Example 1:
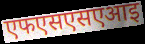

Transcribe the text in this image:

एफएसएसएआइ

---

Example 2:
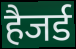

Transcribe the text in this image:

हैजर्ड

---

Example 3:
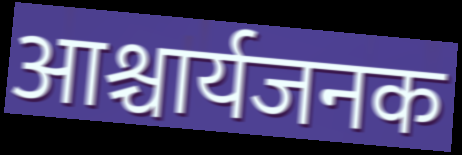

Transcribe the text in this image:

आश्चार्यजनक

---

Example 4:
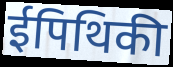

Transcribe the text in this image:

ईपिथिकी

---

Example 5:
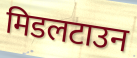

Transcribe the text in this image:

मिडलटाउन